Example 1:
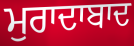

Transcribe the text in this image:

ਮੁਰਾਦਾਬਾਦ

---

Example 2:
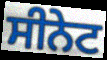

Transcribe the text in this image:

ਸੀਨੇਟ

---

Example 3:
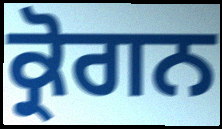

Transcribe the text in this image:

ਕ੍ਰੋਗਨ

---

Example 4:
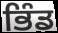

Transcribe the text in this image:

ਭਿੰਡ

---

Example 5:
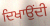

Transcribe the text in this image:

ਦਿਖਾਉਂਦੀ